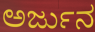
ಅರ್ಜುನ